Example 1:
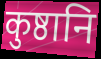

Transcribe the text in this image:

कुष्ठानि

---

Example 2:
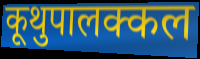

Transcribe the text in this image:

कूथुपालक्कल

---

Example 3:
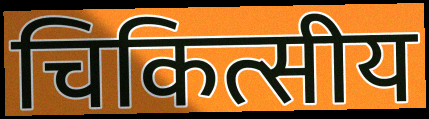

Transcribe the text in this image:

चिकित्सीय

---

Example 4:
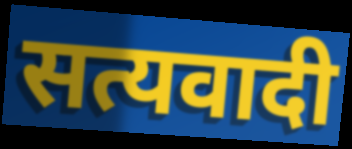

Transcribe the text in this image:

सत्यवादी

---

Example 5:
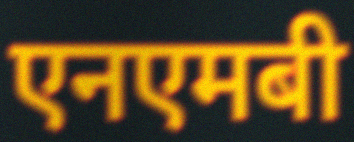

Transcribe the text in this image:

एनएमबी